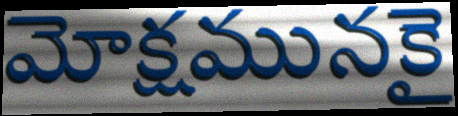
మోక్షమునకై